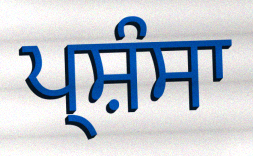
ਪ੍ਸ਼ੰਸਾ